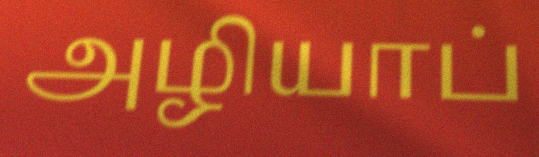
அழியாப்